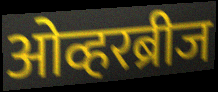
ओव्हरब्रीज